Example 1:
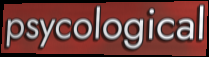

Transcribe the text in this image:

psycological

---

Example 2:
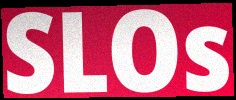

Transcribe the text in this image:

SLOs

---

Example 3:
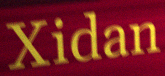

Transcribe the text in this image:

Xidan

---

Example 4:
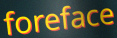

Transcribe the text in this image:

foreface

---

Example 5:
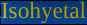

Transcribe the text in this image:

Isohyetal